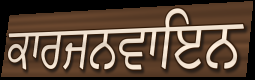
ਕਾਰਜਨਵਾਇਨ